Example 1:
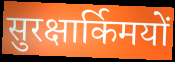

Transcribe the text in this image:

सुरक्षार्किमयों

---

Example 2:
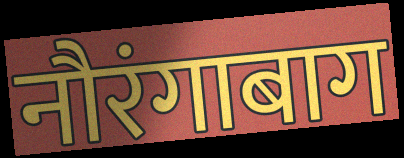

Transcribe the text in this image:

नौरंगाबाग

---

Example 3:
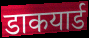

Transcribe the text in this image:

डाकयार्ड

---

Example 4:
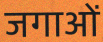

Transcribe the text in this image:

जगाओं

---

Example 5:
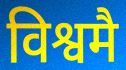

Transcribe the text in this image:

विश्वमै